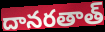
దానరతాత్